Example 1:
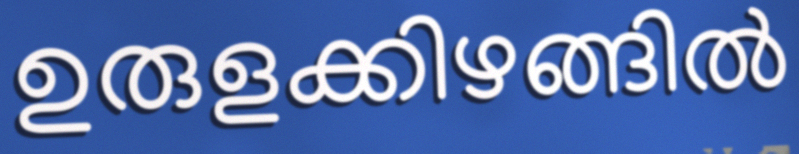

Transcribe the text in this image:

ഉരുളക്കിഴങ്ങിൽ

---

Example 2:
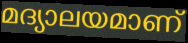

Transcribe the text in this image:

മദ്യാലയമാണ്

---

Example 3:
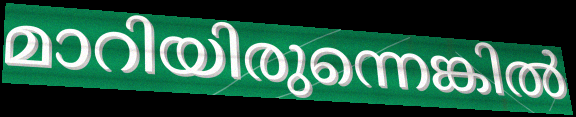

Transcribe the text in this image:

മാറിയിരുന്നെങ്കിൽ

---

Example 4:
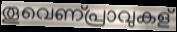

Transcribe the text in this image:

തൂവെണ്പ്രാവുകള്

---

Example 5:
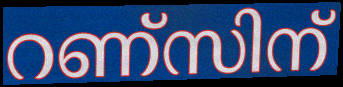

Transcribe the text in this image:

റണ്സിന്